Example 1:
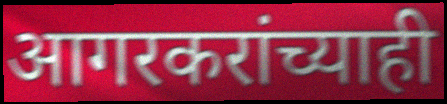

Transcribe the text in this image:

आगरकरांच्याही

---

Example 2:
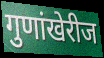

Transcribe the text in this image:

गुणांखेरीज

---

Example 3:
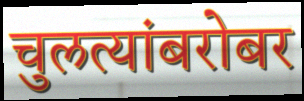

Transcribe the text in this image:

चुलत्यांबरोबर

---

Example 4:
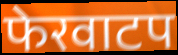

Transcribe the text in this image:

फेरवाटप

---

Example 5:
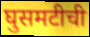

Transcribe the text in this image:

घुसमटीची